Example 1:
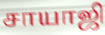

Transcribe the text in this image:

சாயாஜி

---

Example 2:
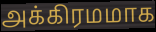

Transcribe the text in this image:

அக்கிரமமாக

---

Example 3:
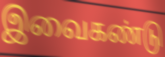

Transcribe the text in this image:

இவைகண்டு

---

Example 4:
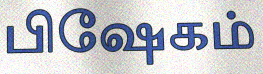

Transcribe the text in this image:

பிஷேகம்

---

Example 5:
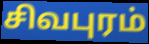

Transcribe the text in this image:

சிவபுரம்